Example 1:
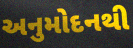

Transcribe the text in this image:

અનુમોદનથી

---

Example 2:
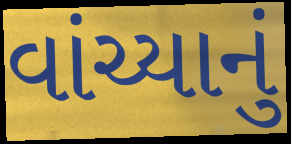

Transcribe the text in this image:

વાંચ્યાનું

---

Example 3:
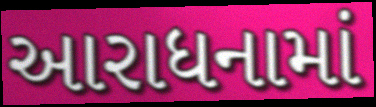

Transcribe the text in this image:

આરાધનામાં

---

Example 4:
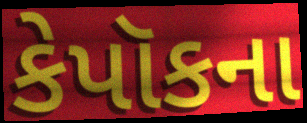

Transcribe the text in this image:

કેપૉકના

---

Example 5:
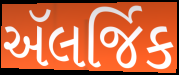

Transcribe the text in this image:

ઍલર્જિક